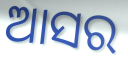
ଆସର